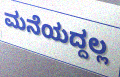
ಮನೆಯದ್ದಲ್ಲ